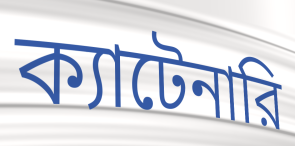
ক্যাটেনারি